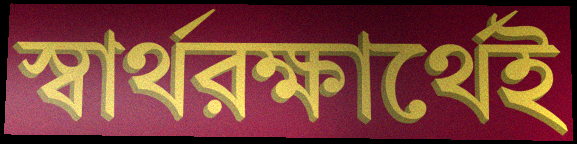
স্বার্থরক্ষার্থেই